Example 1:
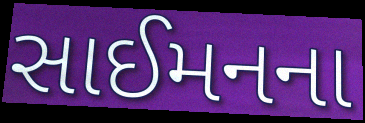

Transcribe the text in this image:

સાઈમનના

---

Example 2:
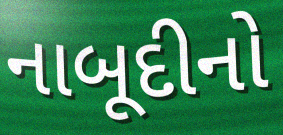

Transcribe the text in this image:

નાબૂદીનો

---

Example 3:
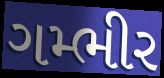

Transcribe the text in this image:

ગમ્ભીર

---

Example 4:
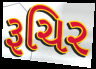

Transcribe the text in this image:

રૂચિર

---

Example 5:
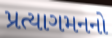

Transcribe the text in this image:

પ્રત્યાગમનનો